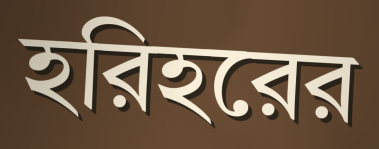
হরিহরের